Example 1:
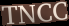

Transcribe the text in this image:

TNCC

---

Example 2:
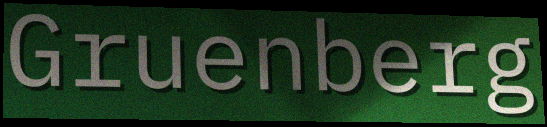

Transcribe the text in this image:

Gruenberg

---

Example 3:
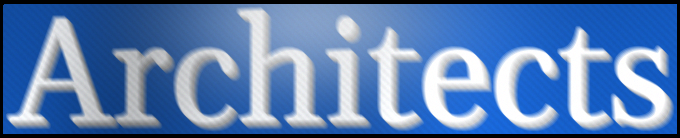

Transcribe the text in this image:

Architects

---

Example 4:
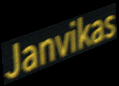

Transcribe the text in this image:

Janvikas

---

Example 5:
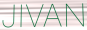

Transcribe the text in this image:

JIVAN